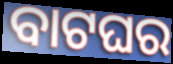
ବାଟଘର